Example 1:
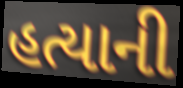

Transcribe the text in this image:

હત્યાની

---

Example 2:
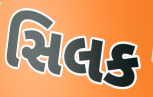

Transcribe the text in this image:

સિલક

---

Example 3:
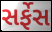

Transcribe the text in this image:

સર્ફેસ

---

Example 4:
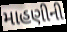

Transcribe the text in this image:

માહણીની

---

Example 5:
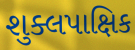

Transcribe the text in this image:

શુક્લપાક્ષિક